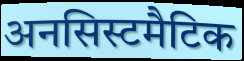
अनसिस्टमैटिक